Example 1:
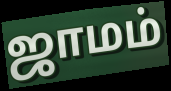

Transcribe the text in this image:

ஜாமம்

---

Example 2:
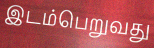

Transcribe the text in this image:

இடம்பெறுவது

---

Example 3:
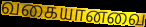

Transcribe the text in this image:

வகையானவை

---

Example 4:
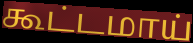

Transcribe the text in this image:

கூட்டமாய்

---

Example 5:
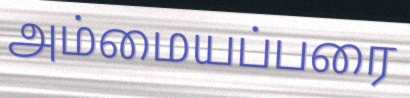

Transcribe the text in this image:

அம்மையப்பரை